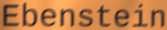
Ebenstein